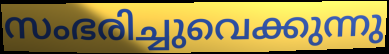
സംഭരിച്ചുവെക്കുന്നു